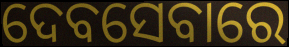
ଦେବସେବାରେ